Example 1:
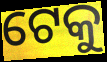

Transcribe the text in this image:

ଟେକୁ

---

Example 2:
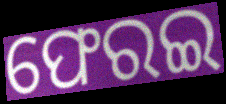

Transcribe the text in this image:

ଫେରଇ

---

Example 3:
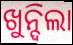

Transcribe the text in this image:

ଖୁନ୍ଦିଲା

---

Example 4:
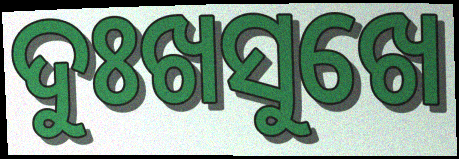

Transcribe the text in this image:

ଦୁଃଖସୁଖେ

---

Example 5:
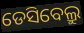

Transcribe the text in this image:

ଡେସିବେଲ୍ରୁ